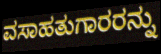
ವಸಾಹತುಗಾರರನ್ನು